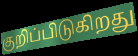
குறிப்பிடுகிறது